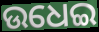
ଉଧେଇ